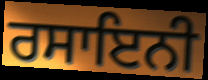
ਰਸਾਇਨੀ